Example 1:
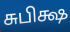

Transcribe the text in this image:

சுபிக்ஷ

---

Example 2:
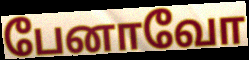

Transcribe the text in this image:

பேனாவோ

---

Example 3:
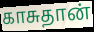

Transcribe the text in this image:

காசுதான்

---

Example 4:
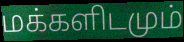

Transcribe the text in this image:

மக்களிடமும்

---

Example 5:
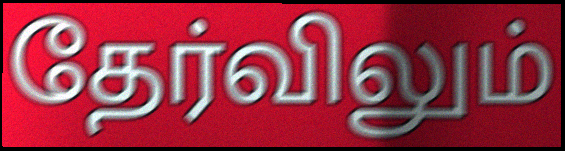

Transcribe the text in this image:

தேர்விலும்